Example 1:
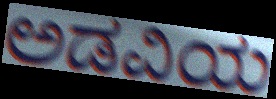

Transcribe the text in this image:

ಅಡವಿಯ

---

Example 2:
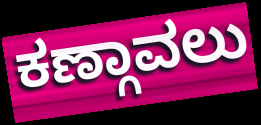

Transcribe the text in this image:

ಕಣ್ಗಾವಲು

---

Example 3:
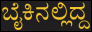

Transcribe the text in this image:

ಬೈಕಿನಲ್ಲಿದ್ದ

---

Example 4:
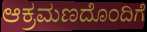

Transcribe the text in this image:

ಆಕ್ರಮಣದೊಂದಿಗೆ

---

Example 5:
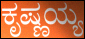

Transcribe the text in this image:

ಕೃಷ್ಣಯ್ಯ